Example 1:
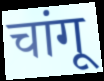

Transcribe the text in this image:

चांगू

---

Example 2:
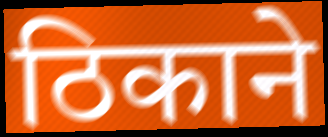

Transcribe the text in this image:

ठिकाने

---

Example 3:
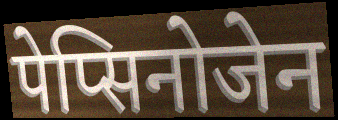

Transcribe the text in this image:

पेप्सिनोजेन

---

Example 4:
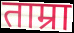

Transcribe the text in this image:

ताम्रा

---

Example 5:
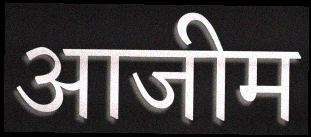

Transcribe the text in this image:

आजीम